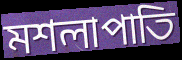
মশলাপাতি